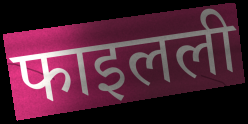
फाइलली